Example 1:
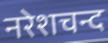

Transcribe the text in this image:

नरेशचन्द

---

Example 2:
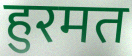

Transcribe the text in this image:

हुरमत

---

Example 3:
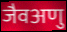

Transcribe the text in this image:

जैवअणु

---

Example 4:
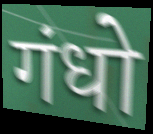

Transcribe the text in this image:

गंधो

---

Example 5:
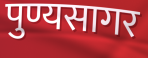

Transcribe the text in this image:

पुण्यसागर